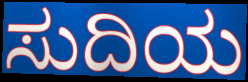
ಸುದಿಯ